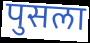
पुसला